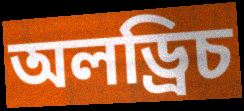
অলড্রিচ